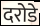
दरोडे